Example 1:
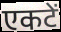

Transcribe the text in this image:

एकटें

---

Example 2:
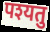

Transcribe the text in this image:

पश्यतु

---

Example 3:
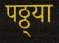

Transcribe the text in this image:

पठ्ठ्या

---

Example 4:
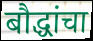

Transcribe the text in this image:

बौद्धांचा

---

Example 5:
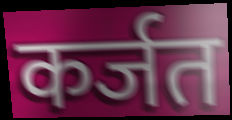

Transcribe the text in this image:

कर्जत